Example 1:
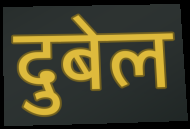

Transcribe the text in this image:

दुबेल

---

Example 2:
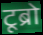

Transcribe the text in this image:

टूब्रो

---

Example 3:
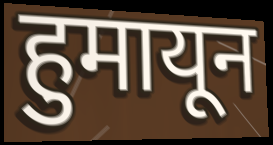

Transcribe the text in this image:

हुमायून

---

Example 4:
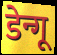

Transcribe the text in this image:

डेन्गू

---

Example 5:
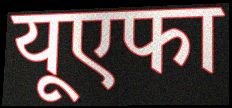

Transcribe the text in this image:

यूएफा